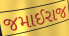
જમાઈરાજ